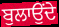
ਬੁਲਾਉਂਦੇ